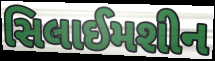
સિલાઈમશીન